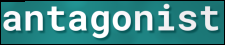
antagonist